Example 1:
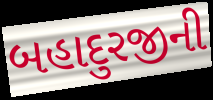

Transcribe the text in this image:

બહાદુરજીની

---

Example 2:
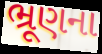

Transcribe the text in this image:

ભ્રૂણના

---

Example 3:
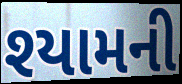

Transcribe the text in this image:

શ્યામની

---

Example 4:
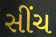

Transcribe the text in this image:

સીંચ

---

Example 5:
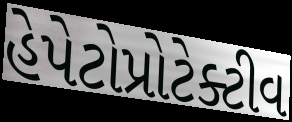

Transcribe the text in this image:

હેપેટોપ્રોટેક્ટીવ